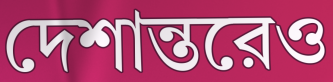
দেশান্তরেও